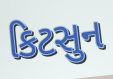
કિટસુન